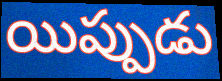
యిప్పుడు